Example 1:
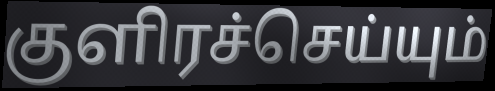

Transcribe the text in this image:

குளிரச்செய்யும்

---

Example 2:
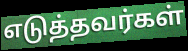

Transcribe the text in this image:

எடுத்தவர்கள்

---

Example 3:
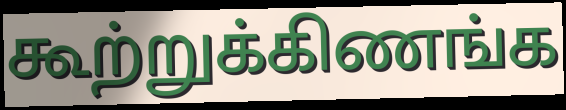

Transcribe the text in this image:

கூற்றுக்கிணங்க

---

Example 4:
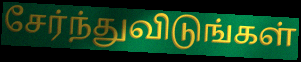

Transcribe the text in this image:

சேர்ந்துவிடுங்கள்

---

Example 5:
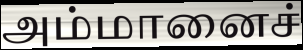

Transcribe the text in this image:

அம்மானைச்